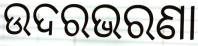
ଉଦରଭରଣା